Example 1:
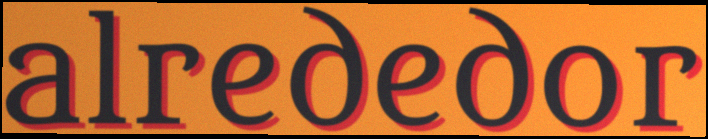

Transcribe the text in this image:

alrededor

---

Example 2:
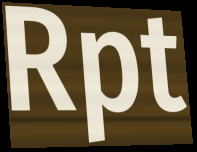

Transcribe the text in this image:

Rpt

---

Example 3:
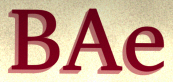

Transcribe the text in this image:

BAe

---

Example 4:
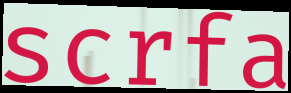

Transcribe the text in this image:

scrfa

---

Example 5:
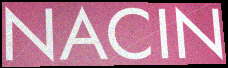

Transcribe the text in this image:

NACIN